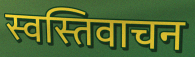
स्वस्तिवाचन